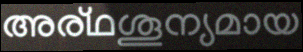
അര്ഥശൂന്യമായ